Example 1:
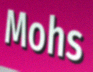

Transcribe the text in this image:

Mohs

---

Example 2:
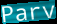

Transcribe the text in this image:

Parv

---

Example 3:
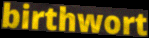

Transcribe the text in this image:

birthwort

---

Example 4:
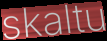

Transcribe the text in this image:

skaltu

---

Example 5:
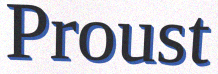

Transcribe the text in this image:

Proust